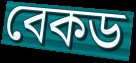
বেকড